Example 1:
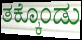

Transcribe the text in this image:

ತಕ್ಕೊಂಡು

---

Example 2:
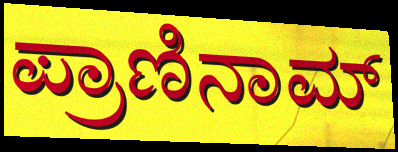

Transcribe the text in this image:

ಪ್ರಾಣಿನಾಮ್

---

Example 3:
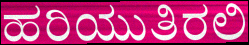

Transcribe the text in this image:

ಹರಿಯುತಿರಲಿ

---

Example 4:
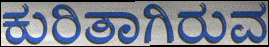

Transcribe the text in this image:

ಕುರಿತಾಗಿರುವ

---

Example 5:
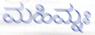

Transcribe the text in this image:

ಮಹಿಮ್ನಃ